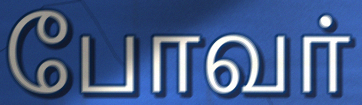
போவர்